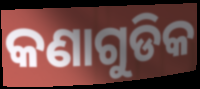
କଣାଗୁଡିକ